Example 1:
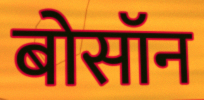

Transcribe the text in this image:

बोसॉन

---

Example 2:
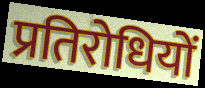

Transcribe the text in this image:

प्रतिरोधियों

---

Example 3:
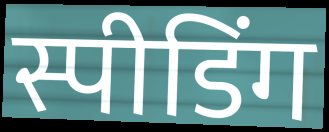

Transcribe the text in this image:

स्‍पीडिंग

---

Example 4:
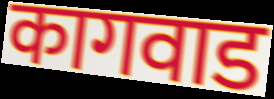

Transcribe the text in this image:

कागवाड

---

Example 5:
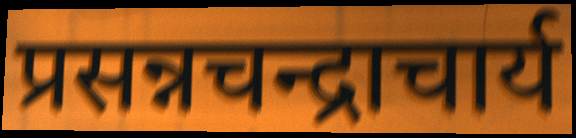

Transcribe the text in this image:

प्रसन्नचन्द्राचार्य